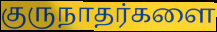
குருநாதர்களை